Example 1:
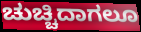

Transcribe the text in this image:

ಚುಚ್ಚಿದಾಗಲೂ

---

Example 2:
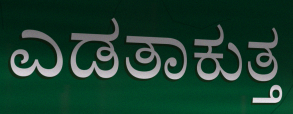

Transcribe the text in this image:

ಎಡತಾಕುತ್ತ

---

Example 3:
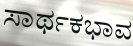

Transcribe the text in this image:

ಸಾರ್ಥಕಭಾವ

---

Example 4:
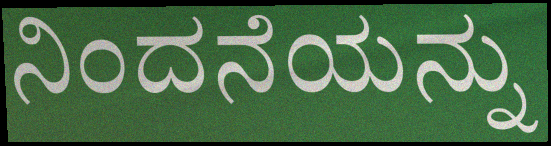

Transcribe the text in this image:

ನಿಂದನೆಯನ್ನು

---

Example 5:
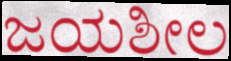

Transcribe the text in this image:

ಜಯಶೀಲ